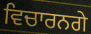
ਵਿਚਾਰਨਗੇ